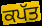
ਕਪੱਤ